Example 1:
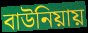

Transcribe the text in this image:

বাউনিয়ায়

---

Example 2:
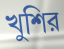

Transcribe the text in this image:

খুশির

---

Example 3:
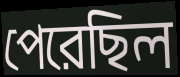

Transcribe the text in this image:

পেরেছিল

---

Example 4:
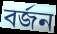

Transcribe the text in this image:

বর্জন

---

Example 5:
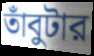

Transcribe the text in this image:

তাঁবুটার